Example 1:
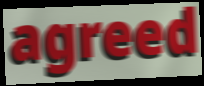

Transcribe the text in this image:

agreed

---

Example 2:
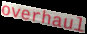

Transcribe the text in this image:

overhaul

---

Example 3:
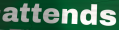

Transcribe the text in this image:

attends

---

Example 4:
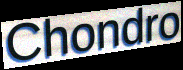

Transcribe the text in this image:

Chondro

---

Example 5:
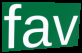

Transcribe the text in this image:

fav